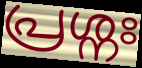
പ്രശ്നഃ